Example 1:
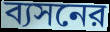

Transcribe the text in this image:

ব্যসনের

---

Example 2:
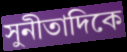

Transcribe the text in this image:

সুনীতাদিকে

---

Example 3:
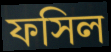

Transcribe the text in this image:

ফসিল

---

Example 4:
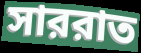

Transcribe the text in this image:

সাররাত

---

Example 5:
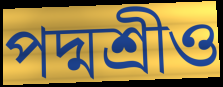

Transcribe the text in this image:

পদ্মশ্রীও